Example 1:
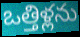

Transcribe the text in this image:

ఒత్తిళ్లను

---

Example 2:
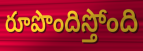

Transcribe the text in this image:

రూపొందిస్తోంది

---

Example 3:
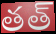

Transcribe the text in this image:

తత్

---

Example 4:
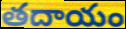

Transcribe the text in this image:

తదాయం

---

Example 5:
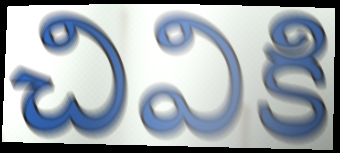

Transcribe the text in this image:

చివికి